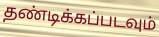
தண்டிக்கப்படவும்